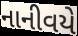
નાનીવયે